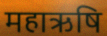
महाऋषि